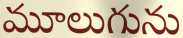
మూలుగును